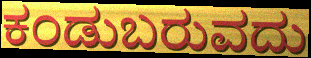
ಕಂಡುಬರುವದು